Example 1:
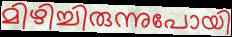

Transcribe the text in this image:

മിഴിച്ചിരുന്നുപോയി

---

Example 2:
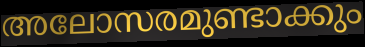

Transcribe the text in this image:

അലോസരമുണ്ടാക്കും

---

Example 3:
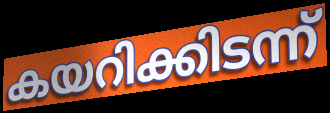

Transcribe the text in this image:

കയറിക്കിടന്ന്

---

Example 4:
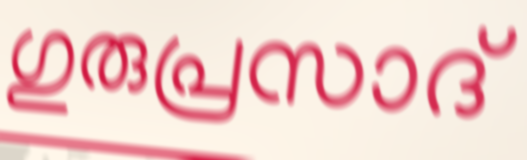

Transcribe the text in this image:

ഗുരുപ്രസാദ്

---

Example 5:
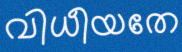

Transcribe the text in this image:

വിധീയതേ